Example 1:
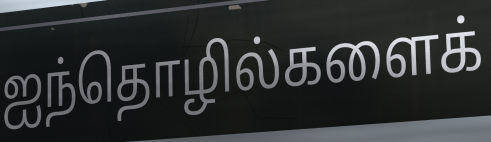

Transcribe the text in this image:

ஐந்தொழில்களைக்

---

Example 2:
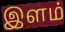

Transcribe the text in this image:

இளம்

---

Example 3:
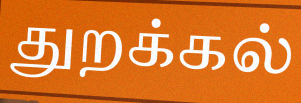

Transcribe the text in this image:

துறக்கல்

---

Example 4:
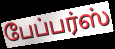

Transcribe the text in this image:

பேப்பர்ஸ்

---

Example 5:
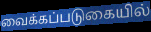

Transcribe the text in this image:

வைக்கப்படுகையில்